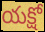
యక్షో